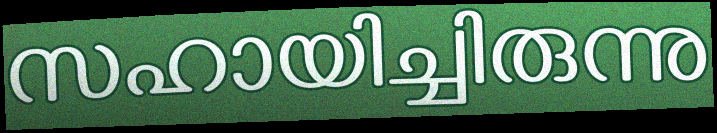
സഹായിച്ചിരുന്നു